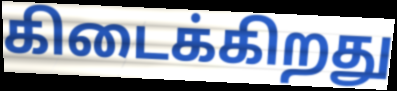
கிடைக்கிறது